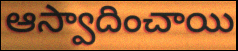
ఆస్వాదించాయి